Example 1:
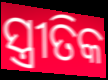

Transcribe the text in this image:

ସ୍ତ୍ରୀତିକ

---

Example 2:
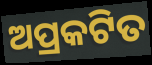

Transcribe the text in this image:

ଅପ୍ରକଟିତ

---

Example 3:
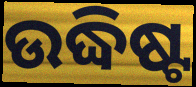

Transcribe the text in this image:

ଉଦ୍ଧିଷ୍ଟ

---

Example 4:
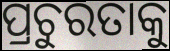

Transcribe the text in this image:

ପ୍ରଚୁରତାକୁ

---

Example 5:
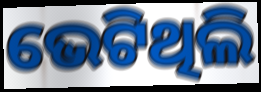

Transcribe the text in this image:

ଭେଟିଥିଲି